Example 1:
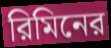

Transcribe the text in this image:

রিমিনের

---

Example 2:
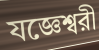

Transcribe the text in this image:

যজ্ঞেশ্বরী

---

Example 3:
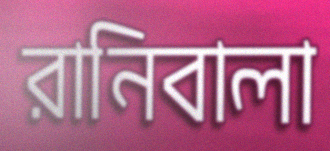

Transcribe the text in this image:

রানিবালা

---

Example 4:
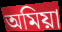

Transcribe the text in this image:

অমিয়া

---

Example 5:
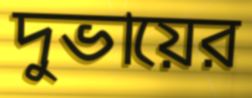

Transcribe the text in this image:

দুভায়ের